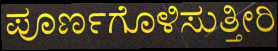
ಪೂರ್ಣಗೊಳಿಸುತ್ತೀರಿ